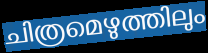
ചിത്രമെഴുത്തിലും